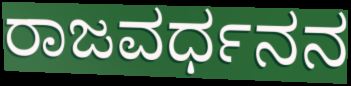
ರಾಜವರ್ಧನನ